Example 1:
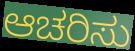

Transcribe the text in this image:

ಆಚರಿಸು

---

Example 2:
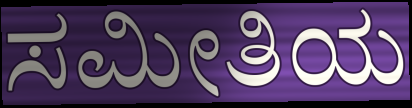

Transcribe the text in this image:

ಸಮೀತಿಯ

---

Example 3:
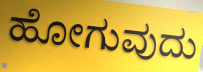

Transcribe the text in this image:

ಹೋಗುವುದು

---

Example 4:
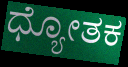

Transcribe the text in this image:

ಧ್ಯೋತಕ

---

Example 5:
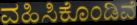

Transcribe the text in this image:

ವಹಿಸಿಕೊಂಡಿವೆ